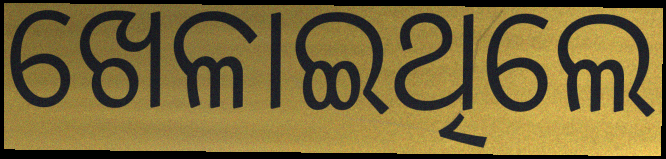
ଖେଳାଇଥିଲେ